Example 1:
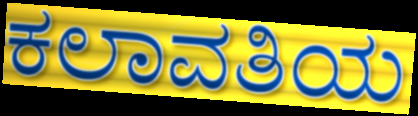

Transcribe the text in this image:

ಕಲಾವತಿಯ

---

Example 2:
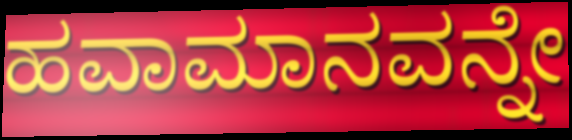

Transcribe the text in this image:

ಹವಾಮಾನವನ್ನೇ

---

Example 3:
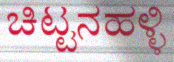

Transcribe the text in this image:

ಚಿಟ್ಟನಹಳ್ಳಿ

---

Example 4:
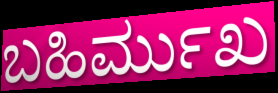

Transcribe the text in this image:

ಬಹಿರ್ಮುಖ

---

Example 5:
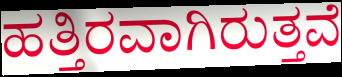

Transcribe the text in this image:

ಹತ್ತಿರವಾಗಿರುತ್ತವೆ